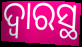
ଦ୍ବାରସ୍ଥ